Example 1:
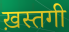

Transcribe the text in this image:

ख़स्तगी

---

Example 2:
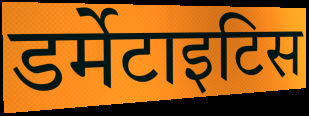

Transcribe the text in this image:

डर्मेटाइटिस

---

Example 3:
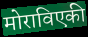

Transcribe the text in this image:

मोराविएकी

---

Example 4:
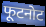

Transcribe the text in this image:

फूटनोट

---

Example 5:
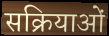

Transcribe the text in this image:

सक्रियाओं